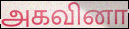
அகவினா